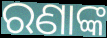
ରଣାଙ୍କ